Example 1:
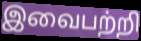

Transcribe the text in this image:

இவைபற்றி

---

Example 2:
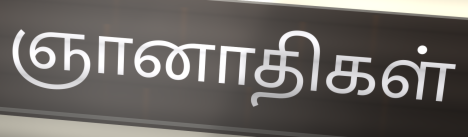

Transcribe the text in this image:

ஞானாதிகள்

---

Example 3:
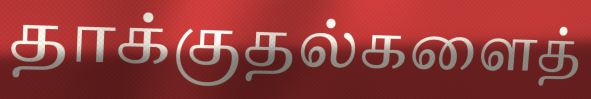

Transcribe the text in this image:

தாக்குதல்களைத்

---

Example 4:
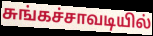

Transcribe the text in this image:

சுங்கச்சாவடியில்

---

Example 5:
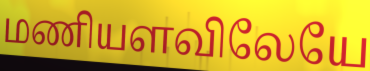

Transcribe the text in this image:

மணியளவிலேயே